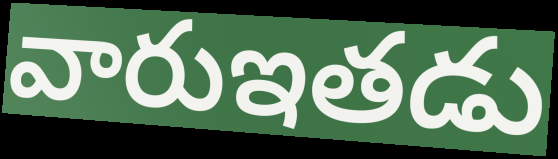
వారుఇతడు